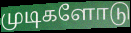
முடிகளோடு